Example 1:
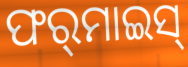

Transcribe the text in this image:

ଫର୍‌ମାଇସ୍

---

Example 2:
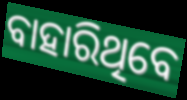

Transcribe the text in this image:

ବାହାରିଥିବେ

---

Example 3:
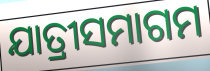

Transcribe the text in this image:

ଯାତ୍ରୀସମାଗମ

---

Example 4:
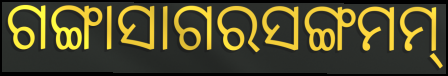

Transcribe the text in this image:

ଗଙ୍ଗାସାଗରସଙ୍ଗମମ୍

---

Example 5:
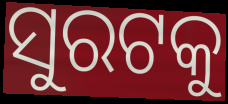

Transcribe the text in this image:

ସୁରଟକୁ